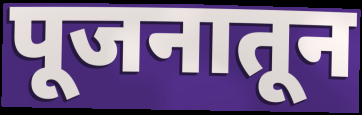
पूजनातून